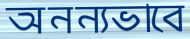
অনন্যভাবে